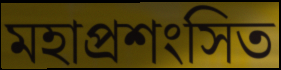
মহাপ্রশংসিত